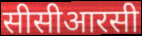
सीसीआरसी